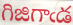
గిజిగాఁడ